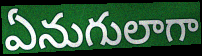
ఏనుగులాగా